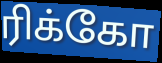
ரிக்கோ